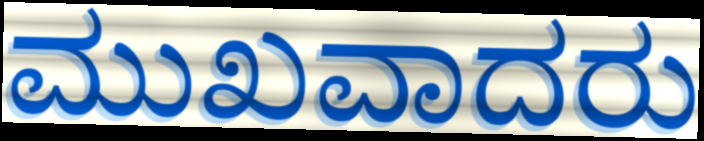
ಮುಖವಾದರು